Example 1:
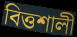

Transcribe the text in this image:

বিত্তশালী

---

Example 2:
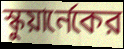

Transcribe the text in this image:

স্কুয়ার্নেকের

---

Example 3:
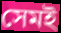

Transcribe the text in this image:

সেমই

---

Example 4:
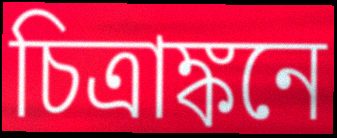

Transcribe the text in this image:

চিত্রাঙ্কনে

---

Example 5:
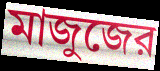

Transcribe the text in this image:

মাজুজের